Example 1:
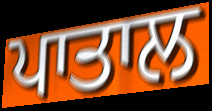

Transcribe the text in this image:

ਪਾਤਾਲ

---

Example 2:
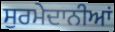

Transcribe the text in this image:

ਸੁਰਮੇਦਾਨੀਆਂ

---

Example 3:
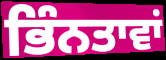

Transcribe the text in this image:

ਭਿੰਨਤਾਵਾਂ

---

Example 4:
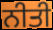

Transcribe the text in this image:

ਨੀਤੀ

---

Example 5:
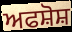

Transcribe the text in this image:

ਅਫਸ਼ੋਸ਼